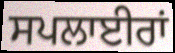
ਸਪਲਾਈਰਾਂ